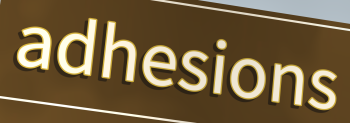
adhesions